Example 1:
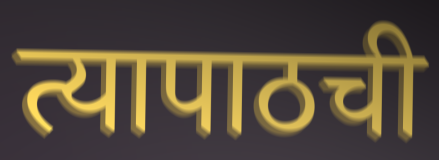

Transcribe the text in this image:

त्यापाठची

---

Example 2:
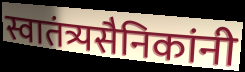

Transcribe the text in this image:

स्वातंत्र्यसैनिकांनी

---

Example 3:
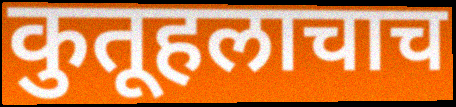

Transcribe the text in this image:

कुतूहलाचाच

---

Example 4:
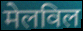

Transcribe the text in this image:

मेलविल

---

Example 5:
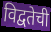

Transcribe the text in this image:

विद्वतेची